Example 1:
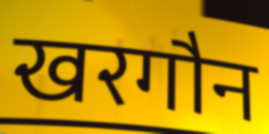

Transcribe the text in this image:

खरगौन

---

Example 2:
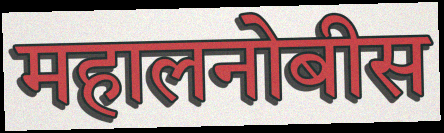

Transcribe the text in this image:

महालनोबीस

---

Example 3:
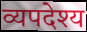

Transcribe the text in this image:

व्यपदेश्य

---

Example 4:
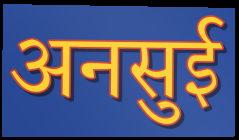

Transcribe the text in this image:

अनसुई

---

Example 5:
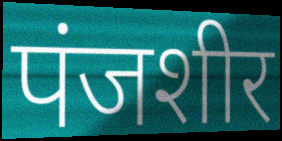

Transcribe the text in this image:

पंजशीर